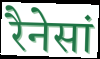
रैनेसां